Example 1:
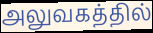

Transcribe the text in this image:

அலுவகத்தில்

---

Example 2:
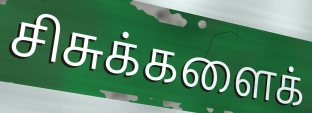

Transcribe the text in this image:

சிசுக்களைக்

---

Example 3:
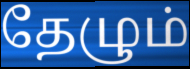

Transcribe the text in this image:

தேழும்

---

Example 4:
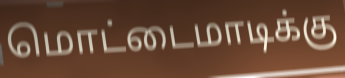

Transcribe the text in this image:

மொட்டைமாடிக்கு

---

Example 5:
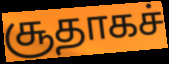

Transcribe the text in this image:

சூதாகச்